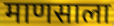
माणसाला